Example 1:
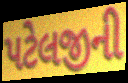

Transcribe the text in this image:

પટેલજીની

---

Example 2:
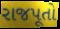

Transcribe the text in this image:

રાજપૂતો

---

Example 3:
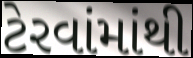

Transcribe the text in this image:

ટેરવાંમાંથી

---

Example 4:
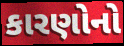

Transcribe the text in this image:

કારણોનો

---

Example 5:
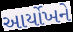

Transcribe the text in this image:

આર્યોખને